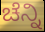
ಚೆನ್ನಿ